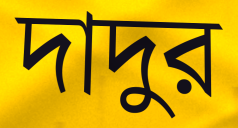
দাদুর